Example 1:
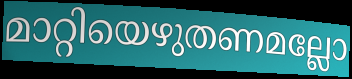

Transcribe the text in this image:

മാറ്റിയെഴുതണമല്ലോ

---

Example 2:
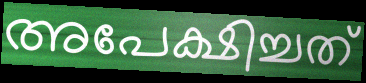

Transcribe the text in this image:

അപേക്ഷിച്ചത്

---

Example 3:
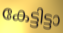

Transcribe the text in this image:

കേട്ടിട്ടാ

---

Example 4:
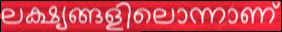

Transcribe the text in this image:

ലക്ഷ്യങ്ങളിലൊന്നാണ്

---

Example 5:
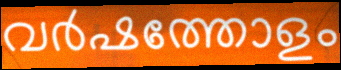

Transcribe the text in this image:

വർഷത്തോളം